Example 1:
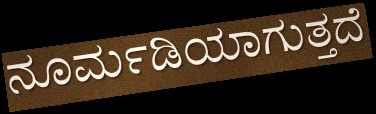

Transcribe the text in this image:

ನೂರ್ಮಡಿಯಾಗುತ್ತದೆ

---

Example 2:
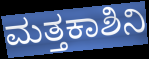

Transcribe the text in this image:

ಮತ್ತಕಾಶಿನಿ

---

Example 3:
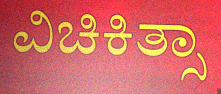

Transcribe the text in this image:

ವಿಚಿಕಿತ್ಸಾ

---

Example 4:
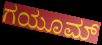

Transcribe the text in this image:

ಗಯೂಮ್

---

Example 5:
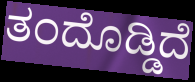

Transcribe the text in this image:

ತಂದೊಡ್ಡಿದೆ